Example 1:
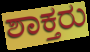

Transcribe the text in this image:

ಶಾಕ್ತರು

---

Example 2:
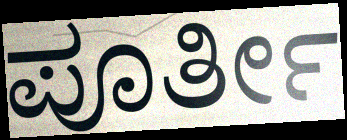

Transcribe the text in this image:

ಪೂರ್ತೀ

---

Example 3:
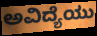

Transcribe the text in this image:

ಅವಿದ್ಯೆಯು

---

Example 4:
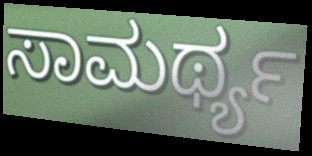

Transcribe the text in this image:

ಸಾಮರ್ಥ್ಯ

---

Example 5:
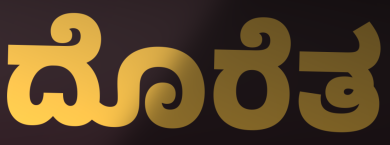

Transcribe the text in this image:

ದೊರೆತ